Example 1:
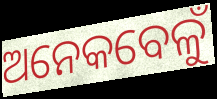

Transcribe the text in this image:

ଅନେକବେଳୁଁ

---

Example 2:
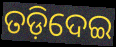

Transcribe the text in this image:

ତଡ଼ିଦେଇ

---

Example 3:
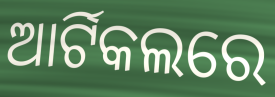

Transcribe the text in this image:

ଆର୍ଟିକଲରେ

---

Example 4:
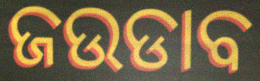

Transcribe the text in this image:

ଜଉଡାବ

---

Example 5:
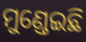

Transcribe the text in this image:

ମୁଣ୍ଡେଇଛି